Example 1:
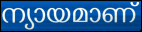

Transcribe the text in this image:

ന്യായമാണ്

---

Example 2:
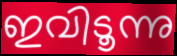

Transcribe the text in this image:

ഇവിടൂന്നു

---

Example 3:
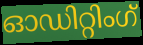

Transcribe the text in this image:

ഓഡിറ്റിംഗ്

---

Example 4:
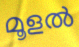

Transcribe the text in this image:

മൂളൽ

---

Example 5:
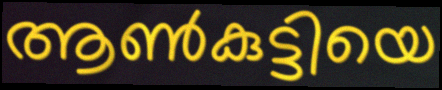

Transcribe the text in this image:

ആൺകുട്ടിയെ